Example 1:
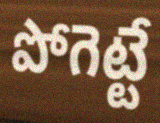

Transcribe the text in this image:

పోగెట్టే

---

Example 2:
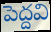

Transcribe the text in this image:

పెద్దవి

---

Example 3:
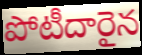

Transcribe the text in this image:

పోటీదారైన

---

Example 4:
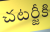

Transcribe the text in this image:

చటర్జీకి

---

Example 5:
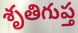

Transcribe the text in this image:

శృతిగుప్త